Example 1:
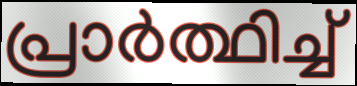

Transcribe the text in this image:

പ്രാർത്ഥിച്ച്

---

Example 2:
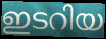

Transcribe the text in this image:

ഇടറിയ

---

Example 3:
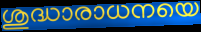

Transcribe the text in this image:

ശുദ്ധാരാധനയെ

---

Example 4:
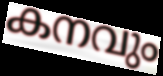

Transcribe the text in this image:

കനവും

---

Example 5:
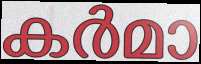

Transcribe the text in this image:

കർമാ